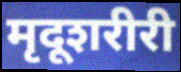
मृदूशरीरी